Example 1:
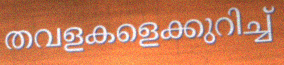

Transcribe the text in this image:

തവളകളെക്കുറിച്ച്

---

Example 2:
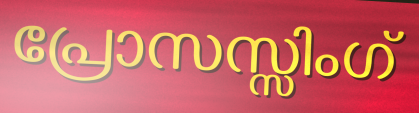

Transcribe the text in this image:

പ്രോസസ്സിംഗ്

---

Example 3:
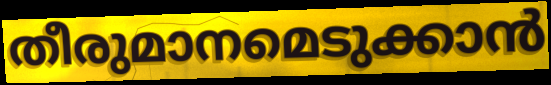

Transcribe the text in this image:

തീരുമാനമെടുക്കാൻ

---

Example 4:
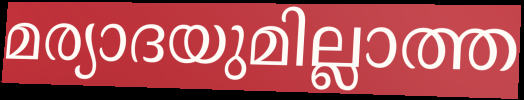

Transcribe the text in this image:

മര്യാദയുമില്ലാത്ത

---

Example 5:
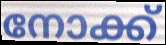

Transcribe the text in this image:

നോക്ക്